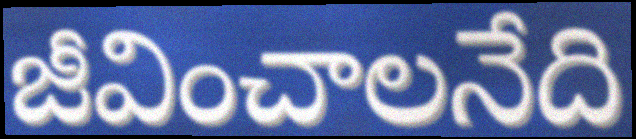
జీవించాలనేది